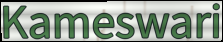
Kameswari